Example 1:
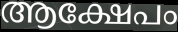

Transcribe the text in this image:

ആക്ഷേപം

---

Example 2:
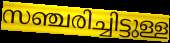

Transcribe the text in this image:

സഞ്ചരിച്ചിട്ടുള്ള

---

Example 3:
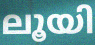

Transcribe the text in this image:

ലൂയി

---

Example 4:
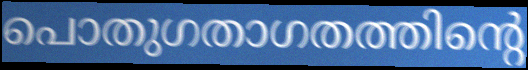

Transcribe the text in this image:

പൊതുഗതാഗതത്തിന്റെ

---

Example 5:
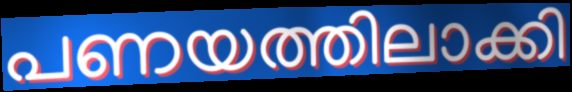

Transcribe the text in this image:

പണയത്തിലാക്കി